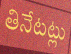
తినేటట్లు